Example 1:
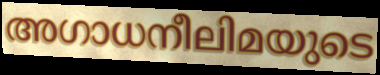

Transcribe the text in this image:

അഗാധനീലിമയുടെ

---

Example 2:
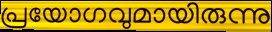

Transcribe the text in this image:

പ്രയോഗവുമായിരുന്നു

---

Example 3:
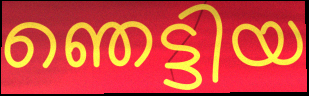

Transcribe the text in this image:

ഞെട്ടിയ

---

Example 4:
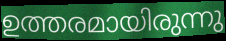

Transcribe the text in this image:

ഉത്തരമായിരുന്നു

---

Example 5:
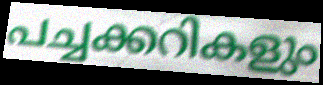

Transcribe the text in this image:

പച്ചക്കറികളും